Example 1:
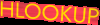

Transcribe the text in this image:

HLOOKUP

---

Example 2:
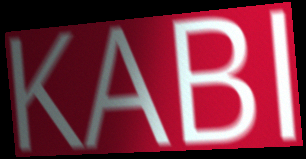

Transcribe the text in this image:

KABI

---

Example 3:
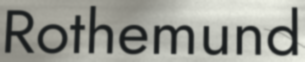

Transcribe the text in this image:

Rothemund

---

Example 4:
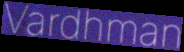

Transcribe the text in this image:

Vardhman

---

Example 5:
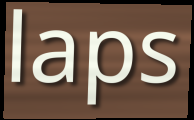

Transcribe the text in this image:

laps